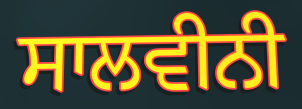
ਸਾਲਵੀਨੀ